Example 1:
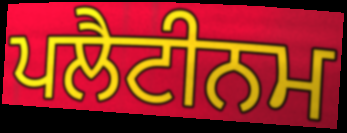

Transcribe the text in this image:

ਪਲੈਟੀਨਮ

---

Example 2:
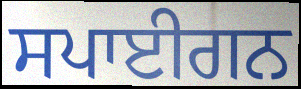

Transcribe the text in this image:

ਸਪਾਈਗਨ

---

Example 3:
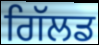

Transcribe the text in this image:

ਗਿੱਲਡ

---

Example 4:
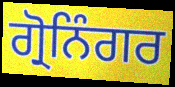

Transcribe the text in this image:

ਗ੍ਰੋਨਿੰਗਰ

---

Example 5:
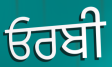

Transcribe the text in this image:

ਓਰਬੀ